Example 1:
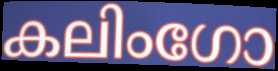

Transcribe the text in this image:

കലിംഗോ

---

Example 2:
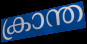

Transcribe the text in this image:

ക്രാന്ത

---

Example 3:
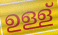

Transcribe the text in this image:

ഉള്ള്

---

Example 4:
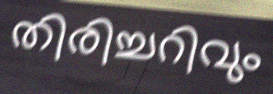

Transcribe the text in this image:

തിരിച്ചറിവും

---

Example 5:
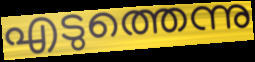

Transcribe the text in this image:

എടുത്തെന്നു